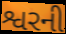
શ્વરની